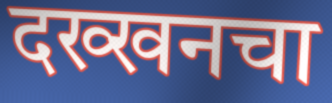
दख्खनचा